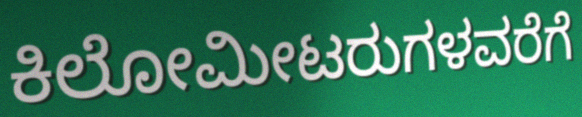
ಕಿಲೋಮೀಟರುಗಳವರೆಗೆ